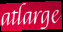
atlarge